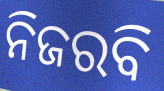
ନିଜରବି